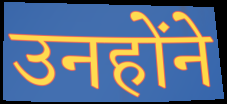
उनहोंने